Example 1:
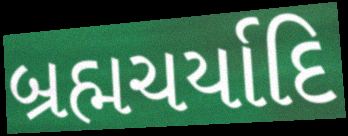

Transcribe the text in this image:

બ્રહ્મચર્યાદિ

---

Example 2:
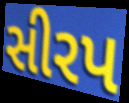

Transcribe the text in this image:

સીરપ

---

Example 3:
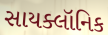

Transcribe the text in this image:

સાયક્લૉનિક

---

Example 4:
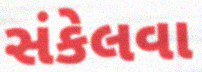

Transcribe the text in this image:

સંકેલવા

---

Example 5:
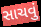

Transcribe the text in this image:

સાચવું